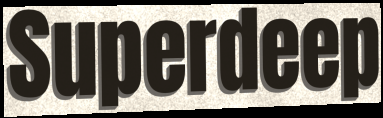
Superdeep